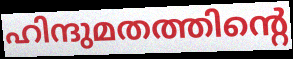
ഹിന്ദുമതത്തിന്റെ